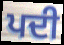
ਪਦੀ